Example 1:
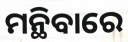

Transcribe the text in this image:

ମନ୍ଥିବାରେ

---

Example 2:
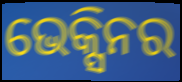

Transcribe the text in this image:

ଭେକ୍ସିନର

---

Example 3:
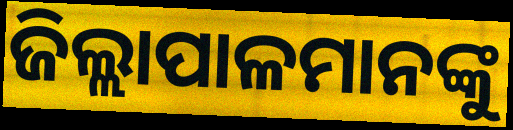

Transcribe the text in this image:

ଜିଲ୍ଲାପାଳମାନଙ୍କୁ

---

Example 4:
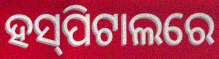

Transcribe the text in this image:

ହସ୍‌ପିଟାଲରେ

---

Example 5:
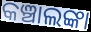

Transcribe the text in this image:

କଞ୍ଚାଲଙ୍କା